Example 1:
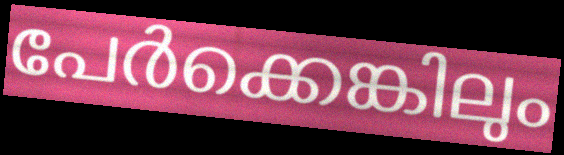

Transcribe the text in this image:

പേർക്കെങ്കിലും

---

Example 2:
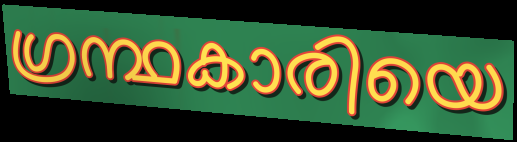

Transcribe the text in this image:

ഗ്രന്ഥകാരിയെ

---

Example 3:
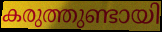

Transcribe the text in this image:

കരുത്തുണ്ടായി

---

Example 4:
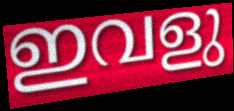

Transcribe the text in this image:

ഇവളു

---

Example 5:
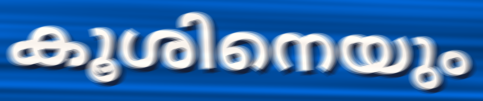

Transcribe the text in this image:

കൂശിനെയും